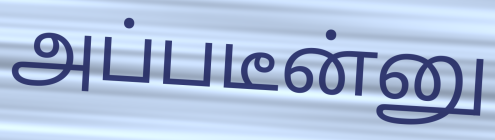
அப்படீன்னு